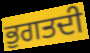
ਭੁਗਤਦੀ